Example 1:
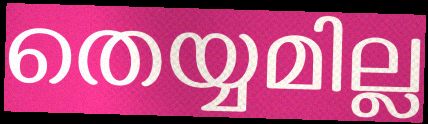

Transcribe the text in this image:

തെയ്യമില്ല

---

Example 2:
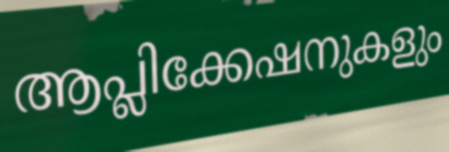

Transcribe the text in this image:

ആപ്ലിക്കേഷനുകളും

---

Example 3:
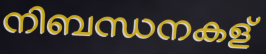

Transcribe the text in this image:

നിബന്ധനകള്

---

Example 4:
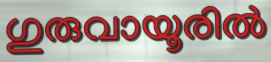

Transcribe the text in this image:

ഗുരുവായൂരിൽ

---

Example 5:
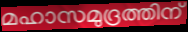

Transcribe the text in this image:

മഹാസമുദ്രത്തിന്